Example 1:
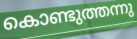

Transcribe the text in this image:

കൊണ്ടുത്തന്നു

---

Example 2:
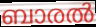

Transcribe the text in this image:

ബാരൽ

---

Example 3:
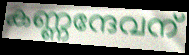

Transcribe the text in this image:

കണ്ണന്ദേവന്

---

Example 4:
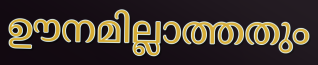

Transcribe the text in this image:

ഊനമില്ലാത്തതും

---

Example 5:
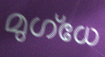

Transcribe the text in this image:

മുഗ്ധേ